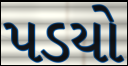
પડયો